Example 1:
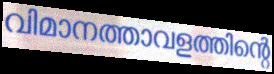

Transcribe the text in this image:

വിമാനത്താവളത്തിന്റെ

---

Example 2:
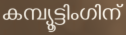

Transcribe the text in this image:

കമ്പ്യൂട്ടിംഗിന്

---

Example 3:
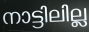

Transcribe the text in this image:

നാട്ടിലില്ല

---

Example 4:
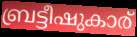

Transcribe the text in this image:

ബ്രട്ടീഷുകാര്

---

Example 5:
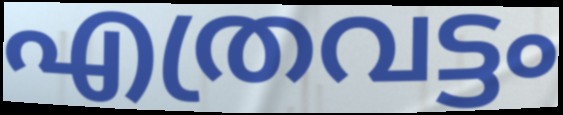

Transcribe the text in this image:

എത്രവട്ടം